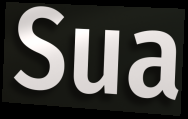
Sua